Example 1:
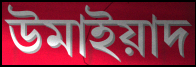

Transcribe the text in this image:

উমাইয়াদ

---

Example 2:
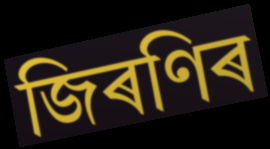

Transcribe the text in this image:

জিৰণিৰ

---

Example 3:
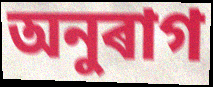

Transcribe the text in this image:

অনুৰাগ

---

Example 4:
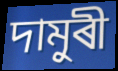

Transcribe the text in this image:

দামুৰী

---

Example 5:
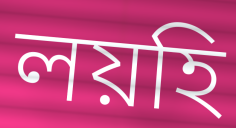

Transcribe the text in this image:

লয়হি